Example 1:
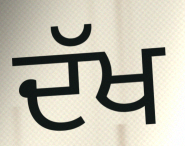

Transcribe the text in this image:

ਦੱਖ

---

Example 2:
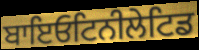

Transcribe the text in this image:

ਬਾਇਓਟਿਨੀਲੇਟਿਡ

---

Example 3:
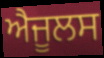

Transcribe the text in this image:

ਐਜੂਲਸ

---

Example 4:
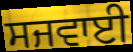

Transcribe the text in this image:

ਸਜਵਾਈ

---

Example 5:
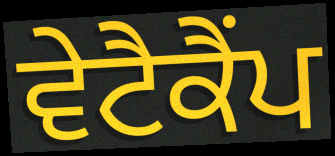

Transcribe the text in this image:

ਵੇਟੈਕੈਂਪ